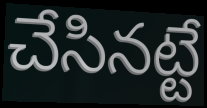
చేసినట్టే